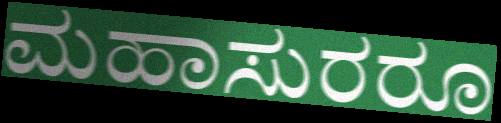
ಮಹಾಸುರರೂ